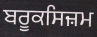
ਬਰੂਕਸਿਜ਼ਮ